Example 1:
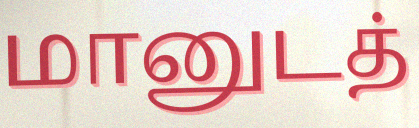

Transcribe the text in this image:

மானுடத்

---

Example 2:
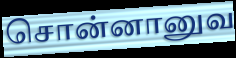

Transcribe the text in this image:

சொன்னானுவ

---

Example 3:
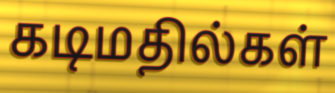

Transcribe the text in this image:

கடிமதில்கள்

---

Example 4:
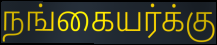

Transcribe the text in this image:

நங்கையர்க்கு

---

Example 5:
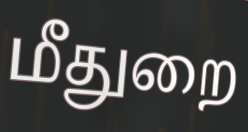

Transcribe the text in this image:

மீதுறை